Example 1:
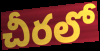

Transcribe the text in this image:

చీరలో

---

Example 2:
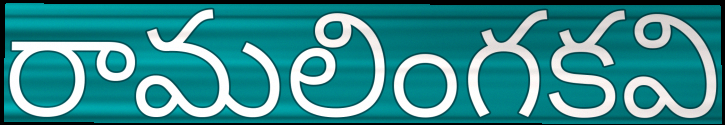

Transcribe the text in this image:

రామలింగకవి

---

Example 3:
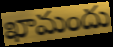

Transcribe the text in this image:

ఖామందు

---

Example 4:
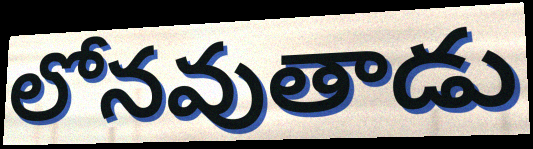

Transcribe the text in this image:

లోనవుతాడు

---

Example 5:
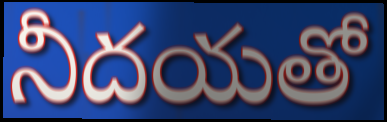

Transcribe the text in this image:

నీదయతో